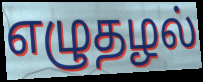
எழுதழல்